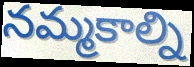
నమ్మకాల్ని